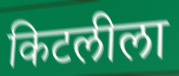
किटलीला